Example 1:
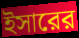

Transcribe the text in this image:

ইসারের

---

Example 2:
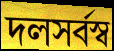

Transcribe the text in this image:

দলসর্বস্ব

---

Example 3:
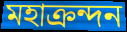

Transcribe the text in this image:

মহাক্রন্দন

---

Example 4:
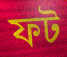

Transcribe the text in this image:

ফট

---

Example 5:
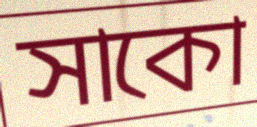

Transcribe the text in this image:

সাকো